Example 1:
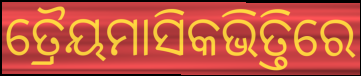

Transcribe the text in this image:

ତ୍ରୈୟମାସିକଭିତ୍ତିରେ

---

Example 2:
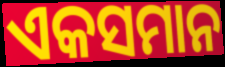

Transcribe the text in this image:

ଏକସମାନ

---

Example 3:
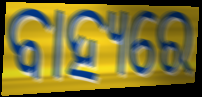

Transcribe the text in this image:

ବାହ୍ୟରେ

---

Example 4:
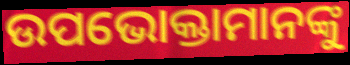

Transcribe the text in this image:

ଉପଭୋକ୍ତାମାନଙ୍କୁ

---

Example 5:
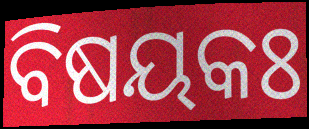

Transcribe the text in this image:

ବିଷୟକଃ